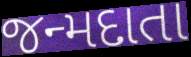
જન્મદાતા